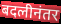
बदलीनंतर